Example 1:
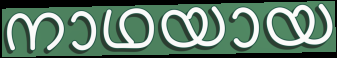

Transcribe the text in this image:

നാഥയായ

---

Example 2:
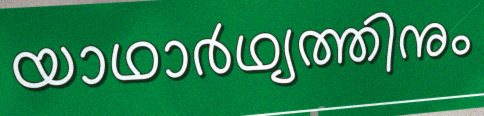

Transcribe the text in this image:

യാഥാർഥ്യത്തിനും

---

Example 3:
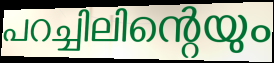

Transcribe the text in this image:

പറച്ചിലിന്റെയും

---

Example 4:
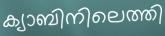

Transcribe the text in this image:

ക്യാബിനിലെത്തി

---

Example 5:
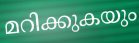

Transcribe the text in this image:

മറിക്കുകയും